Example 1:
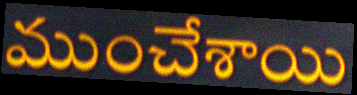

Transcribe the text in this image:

ముంచేశాయి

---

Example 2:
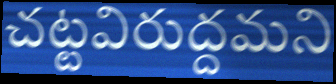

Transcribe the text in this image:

చట్టవిరుద్దమని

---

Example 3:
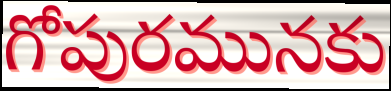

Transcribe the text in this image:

గోపురమునకు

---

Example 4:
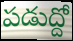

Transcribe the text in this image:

పడుద్దో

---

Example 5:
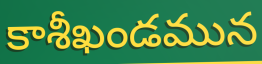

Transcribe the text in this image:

కాశీఖండమున